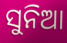
ସୁନିଆ